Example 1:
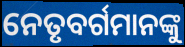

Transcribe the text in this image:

ନେତୃବର୍ଗମାନଙ୍କୁ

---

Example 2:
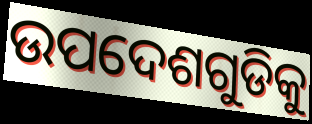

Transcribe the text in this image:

ଉପଦେଶଗୁଡିକୁ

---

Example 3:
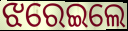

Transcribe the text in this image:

ଝରେଇଲେ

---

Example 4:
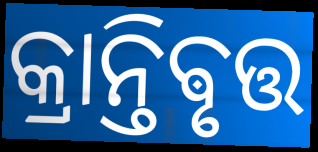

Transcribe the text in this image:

କ୍ରାନ୍ତିଵୃତ୍ତ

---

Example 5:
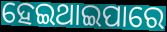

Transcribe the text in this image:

ହେଇଥାଇପାରେ